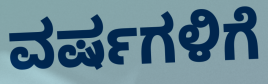
ವರ್ಷಗಳಿಗೆ